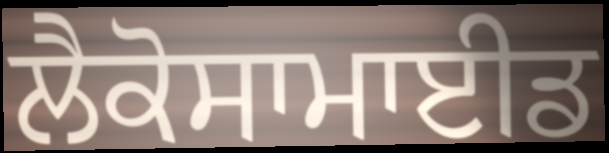
ਲੈਕੋਸਾਮਾਈਡ